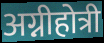
अग्नीहोत्री